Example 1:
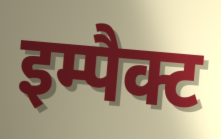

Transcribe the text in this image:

इम्पैक्ट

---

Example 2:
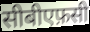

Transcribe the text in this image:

सीबीएफ़सी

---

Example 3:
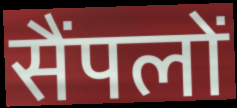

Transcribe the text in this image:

सैंपलों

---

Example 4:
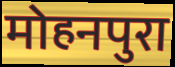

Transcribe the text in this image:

मोहनपुरा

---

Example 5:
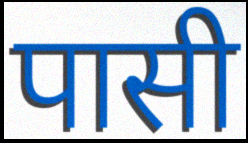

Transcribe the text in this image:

पासी